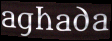
aghada